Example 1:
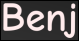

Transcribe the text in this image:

Benj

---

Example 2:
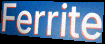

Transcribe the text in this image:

Ferrite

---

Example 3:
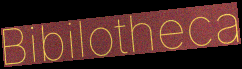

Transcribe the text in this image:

Bibilotheca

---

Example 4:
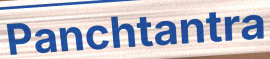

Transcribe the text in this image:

Panchtantra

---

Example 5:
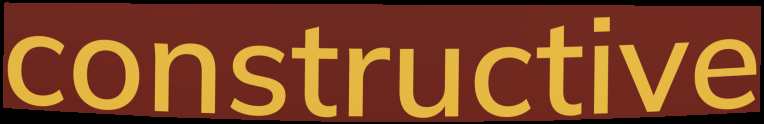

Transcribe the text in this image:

constructive